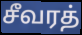
சீவரத்